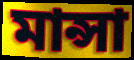
মান্সা